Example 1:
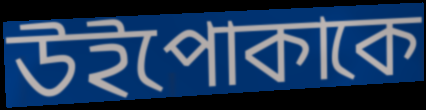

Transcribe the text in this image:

উইপোকাকে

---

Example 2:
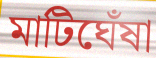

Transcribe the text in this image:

মাটিঘেঁষা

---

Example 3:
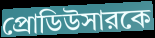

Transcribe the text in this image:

প্রোডিউসারকে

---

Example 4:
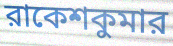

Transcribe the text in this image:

রাকেশকুমার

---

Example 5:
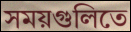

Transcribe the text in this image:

সময়গুলিতে